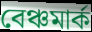
বেঞ্চমার্ক